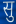
सु